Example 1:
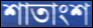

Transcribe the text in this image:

শাতাংশ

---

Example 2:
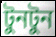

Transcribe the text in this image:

টুনটুন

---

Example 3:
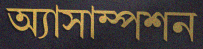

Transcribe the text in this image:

অ্যাসাম্পশন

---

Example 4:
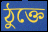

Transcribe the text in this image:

ঠুক্তে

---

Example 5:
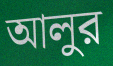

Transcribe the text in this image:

আলুর